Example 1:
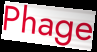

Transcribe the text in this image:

Phage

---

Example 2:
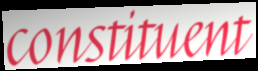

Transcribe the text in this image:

constituent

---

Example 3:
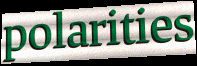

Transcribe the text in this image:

polarities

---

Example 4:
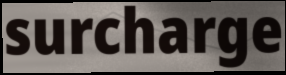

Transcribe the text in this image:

surcharge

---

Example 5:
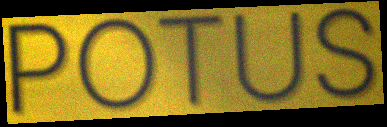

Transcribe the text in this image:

POTUS